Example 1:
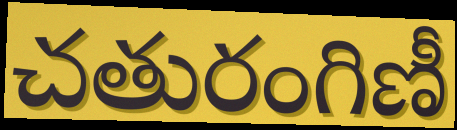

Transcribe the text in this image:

చతురంగిణీ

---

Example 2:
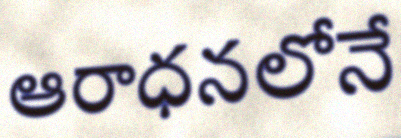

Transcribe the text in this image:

ఆరాధనలోనే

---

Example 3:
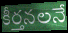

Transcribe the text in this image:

కీర్తనలనే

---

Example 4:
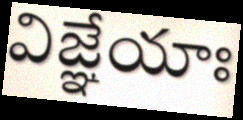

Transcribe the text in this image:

విజ్ఞేయాః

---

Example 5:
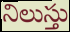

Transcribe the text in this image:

నిలుస్తు